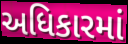
અધિકારમાં